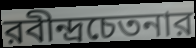
রবীন্দ্রচেতনার